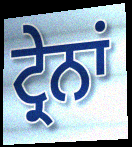
ਟ੍ਰੇਨਾਂ